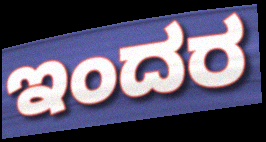
ಇಂದರ